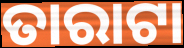
ତାରାଟା